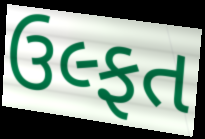
ઉલ્ફત